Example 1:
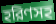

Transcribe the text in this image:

হরিণসহ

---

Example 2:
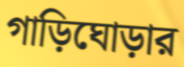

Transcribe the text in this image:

গাড়িঘোড়ার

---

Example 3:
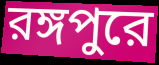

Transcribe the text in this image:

রঙ্গপুরে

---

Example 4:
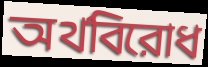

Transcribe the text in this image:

অর্থবিরোধ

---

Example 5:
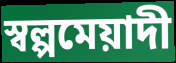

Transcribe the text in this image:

স্বল্পমেয়াদী